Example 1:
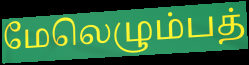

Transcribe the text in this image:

மேலெழும்பத்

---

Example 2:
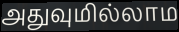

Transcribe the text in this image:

அதுவுமில்லாம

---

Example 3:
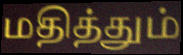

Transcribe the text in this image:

மதித்தும்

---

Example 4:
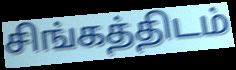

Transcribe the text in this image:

சிங்கத்திடம்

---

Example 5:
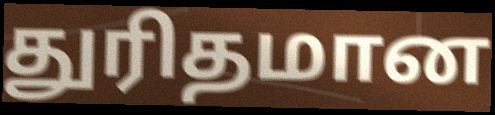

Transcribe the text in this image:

துரிதமான